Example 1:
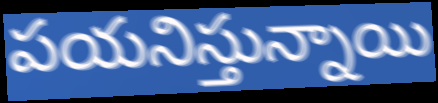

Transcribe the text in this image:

పయనిస్తున్నాయి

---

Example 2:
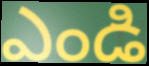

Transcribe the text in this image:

ఎండి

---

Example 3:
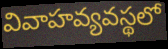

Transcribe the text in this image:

వివాహవ్యవస్థలో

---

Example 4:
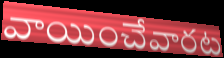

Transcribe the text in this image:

వాయించేవారట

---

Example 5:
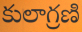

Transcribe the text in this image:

కులాగ్రణి